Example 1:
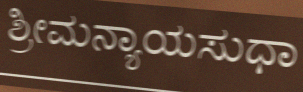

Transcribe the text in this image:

ಶ್ರೀಮನ್ಯಾಯಸುಧಾ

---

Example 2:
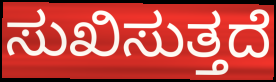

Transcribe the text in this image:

ಸುಖಿಸುತ್ತದೆ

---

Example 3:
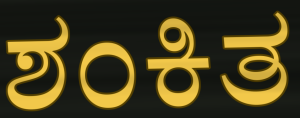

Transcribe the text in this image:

ಶಂಕಿತ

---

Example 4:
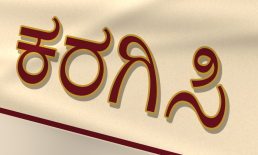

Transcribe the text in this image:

ಕರಗಿಸಿ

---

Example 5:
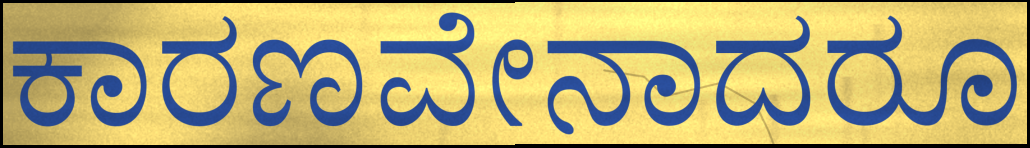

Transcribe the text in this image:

ಕಾರಣವೇನಾದರೂ